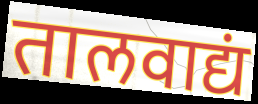
तालवाद्यं